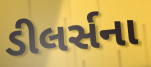
ડીલર્સના